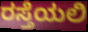
ರಸ್ತೆಯಲಿ